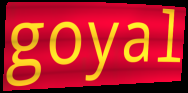
goyal